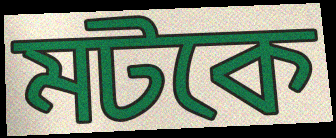
মটকে